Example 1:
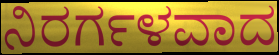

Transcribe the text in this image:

ನಿರರ್ಗಳವಾದ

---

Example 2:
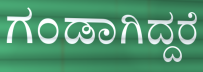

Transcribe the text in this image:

ಗಂಡಾಗಿದ್ದರೆ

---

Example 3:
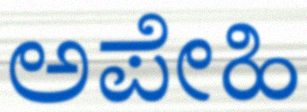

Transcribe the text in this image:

ಅಪೇಹಿ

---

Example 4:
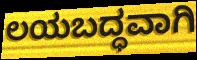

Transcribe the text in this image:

ಲಯಬದ್ಧವಾಗಿ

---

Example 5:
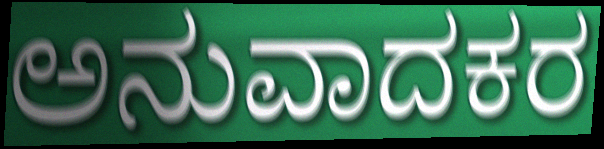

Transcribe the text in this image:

ಅನುವಾದಕರ